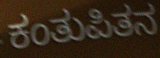
ಕಂತುಪಿತನ